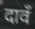
दावँ